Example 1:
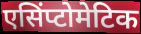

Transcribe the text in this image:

एसिंप्टोमेटिक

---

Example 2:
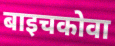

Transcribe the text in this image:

बाइचकोवा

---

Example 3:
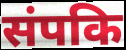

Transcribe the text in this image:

संपकि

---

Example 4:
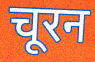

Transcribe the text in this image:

चूरन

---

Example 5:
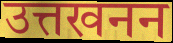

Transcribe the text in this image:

उत्तखनन